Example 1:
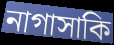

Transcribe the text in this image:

নাগাসাকি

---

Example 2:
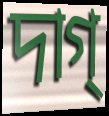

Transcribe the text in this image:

দাগ্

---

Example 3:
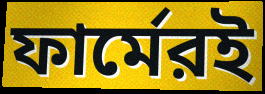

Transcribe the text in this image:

ফার্মেরই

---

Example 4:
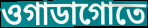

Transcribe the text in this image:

ওগাডাগোতে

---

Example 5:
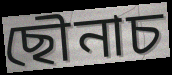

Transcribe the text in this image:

ছৌনাচ